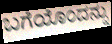
ಬಗೆಯೊಂದನ್ನು